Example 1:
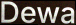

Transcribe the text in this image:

Dewa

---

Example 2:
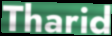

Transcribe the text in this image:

Tharid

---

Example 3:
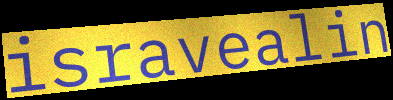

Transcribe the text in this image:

isravealin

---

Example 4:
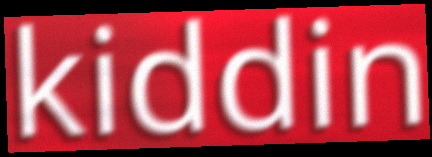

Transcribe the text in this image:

kiddin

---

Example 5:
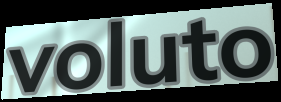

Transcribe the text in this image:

voluto